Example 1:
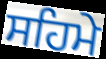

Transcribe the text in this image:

ਸਹਿਮੇ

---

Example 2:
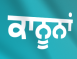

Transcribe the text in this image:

ਕਾਨੂਨਾਂ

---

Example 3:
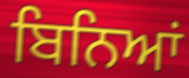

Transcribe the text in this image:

ਬਿਨਿਆਂ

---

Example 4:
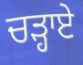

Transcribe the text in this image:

ਚੜ੍ਹਾਏ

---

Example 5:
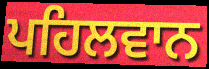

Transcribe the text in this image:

ਪਹਿਲਵਾਨ